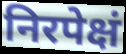
निरपेक्षं